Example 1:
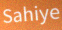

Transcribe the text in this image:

Sahiye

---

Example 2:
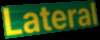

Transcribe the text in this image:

Lateral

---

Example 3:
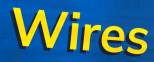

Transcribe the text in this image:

Wires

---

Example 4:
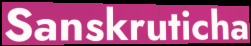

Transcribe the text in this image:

Sanskruticha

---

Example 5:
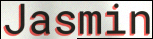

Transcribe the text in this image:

Jasmin